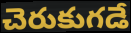
చెరుకుగడే